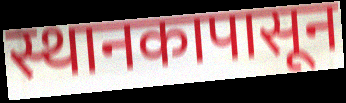
स्थानकापासून